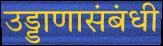
उड्डाणासंबंधी